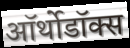
ऑर्थोडॉक्स